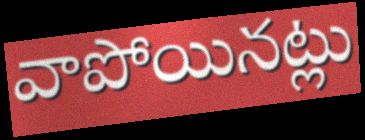
వాపోయినట్లు